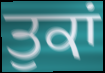
ਤੁਕਾਂ